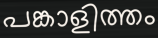
പങ്കാളിത്തം